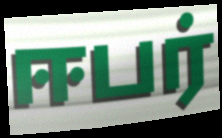
ஈபர்